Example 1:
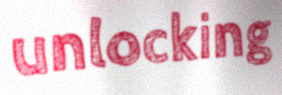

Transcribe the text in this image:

unlocking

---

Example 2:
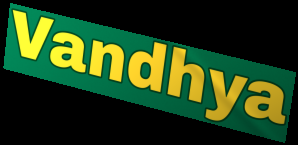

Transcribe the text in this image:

Vandhya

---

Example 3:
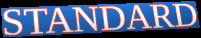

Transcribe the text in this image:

STANDARD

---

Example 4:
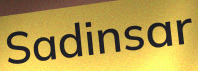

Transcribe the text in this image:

Sadinsar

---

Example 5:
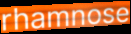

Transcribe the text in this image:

rhamnose